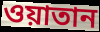
ওয়াতান